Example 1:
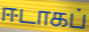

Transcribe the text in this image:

ஈடாகப்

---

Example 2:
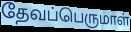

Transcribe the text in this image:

தேவப்பெருமாள்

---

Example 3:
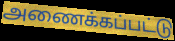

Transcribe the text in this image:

அணைக்கப்பட்டு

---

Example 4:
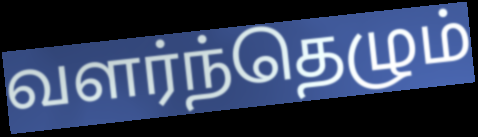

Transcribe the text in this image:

வளர்ந்தெழும்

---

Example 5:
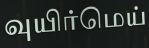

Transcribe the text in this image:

வுயிர்மெய்